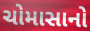
ચોમાસાનો